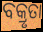
ବକ୍ରୃତା